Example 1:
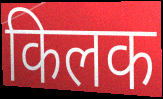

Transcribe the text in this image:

किलक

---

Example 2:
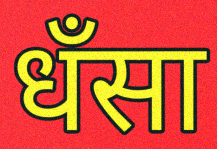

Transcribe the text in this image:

धँसा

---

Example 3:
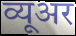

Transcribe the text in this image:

व्यूअर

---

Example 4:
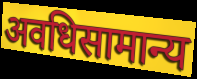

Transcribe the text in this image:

अवधिसामान्य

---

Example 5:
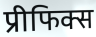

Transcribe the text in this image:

प्रीफिक्स